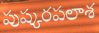
పుష్కరపలాశ